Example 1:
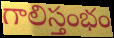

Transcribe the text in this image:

గాలిస్తంభం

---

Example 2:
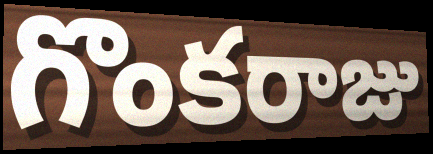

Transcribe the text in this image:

గొంకరాజు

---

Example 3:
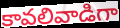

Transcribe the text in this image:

కావలివాడిగా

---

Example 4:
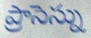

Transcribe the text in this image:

ప్రాసెస్ను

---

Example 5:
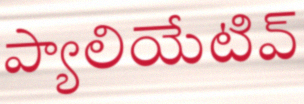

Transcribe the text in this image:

ప్యాలియేటివ్